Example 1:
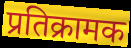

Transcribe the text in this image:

प्रतिक्रामक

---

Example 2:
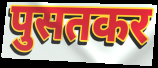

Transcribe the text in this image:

पुसतकर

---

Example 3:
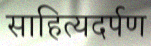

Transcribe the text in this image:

साहित्यदर्पण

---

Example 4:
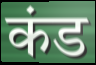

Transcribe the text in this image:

कंड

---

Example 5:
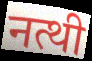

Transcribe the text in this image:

नत्थी